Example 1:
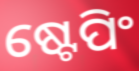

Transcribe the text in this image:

ଷ୍ଟେପିଂ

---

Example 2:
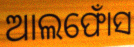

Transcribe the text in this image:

ଆଲଫୋଁସ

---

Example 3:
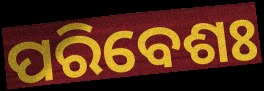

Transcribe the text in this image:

ପରିବେଶଃ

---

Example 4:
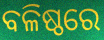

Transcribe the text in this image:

ବଳିଷ୍ଠରେ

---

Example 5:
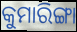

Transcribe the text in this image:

କୁମାରିଙ୍ଗା